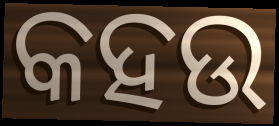
କହଉ